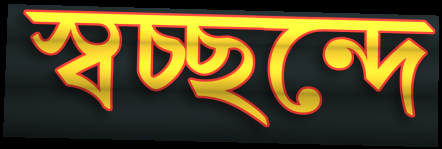
স্বচ্ছন্দে